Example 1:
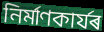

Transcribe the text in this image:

নিৰ্মাণকাৰ্যৰ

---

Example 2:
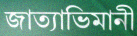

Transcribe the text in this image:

জাত্যাভিমানী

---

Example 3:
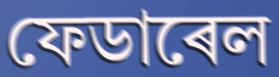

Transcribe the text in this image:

ফেডাৰেল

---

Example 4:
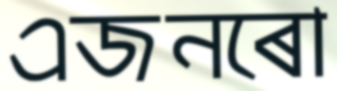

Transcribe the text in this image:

এজনৰো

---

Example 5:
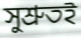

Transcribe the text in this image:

সুশ্ৰুতই